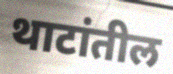
थाटांतील